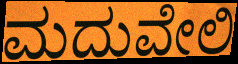
ಮದುವೇಲಿ